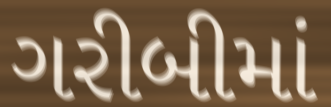
ગરીબીમાં